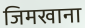
जिमखाना